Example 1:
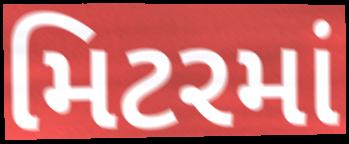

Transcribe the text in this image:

મિટરમાં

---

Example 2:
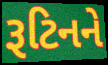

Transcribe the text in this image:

રૂટિનને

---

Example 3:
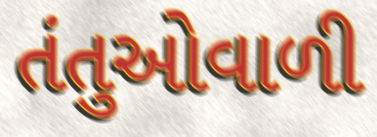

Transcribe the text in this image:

તંતુઓવાળી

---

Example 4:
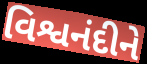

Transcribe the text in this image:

વિશ્વનંદીને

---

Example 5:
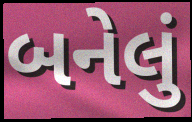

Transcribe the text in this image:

બનેલું